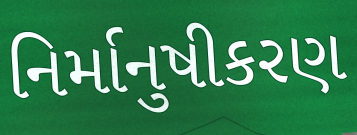
નિર્માનુષીકરણ